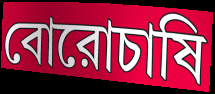
বোরোচাষি